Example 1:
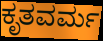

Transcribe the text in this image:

ಕೃತವರ್ಮ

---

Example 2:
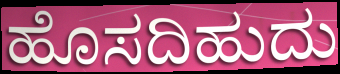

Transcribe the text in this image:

ಹೊಸದಿಹುದು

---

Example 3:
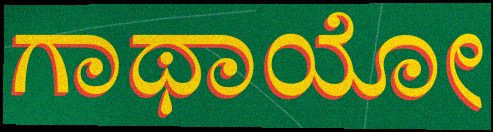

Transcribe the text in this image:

ಗಾಥಾಯೋ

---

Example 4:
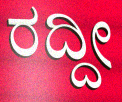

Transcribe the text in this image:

ರದ್ದೀ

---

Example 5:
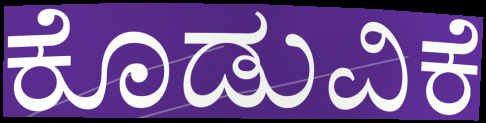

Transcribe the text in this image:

ಕೊಡುವಿಕೆ